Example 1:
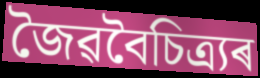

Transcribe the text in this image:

জৈৱবৈচিত্ৰ্যৰ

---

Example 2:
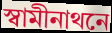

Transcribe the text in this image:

স্বামীনাথনে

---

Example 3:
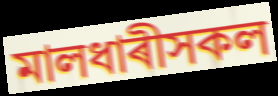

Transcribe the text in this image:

মালধাৰীসকল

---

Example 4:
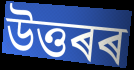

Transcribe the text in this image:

উত্তৰৰ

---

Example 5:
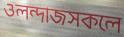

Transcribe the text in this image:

ওলন্দাজসকলে